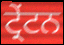
ਟ੍ਰੇਂਟਨ